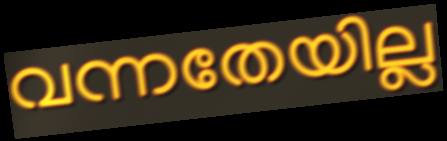
വന്നതേയില്ല